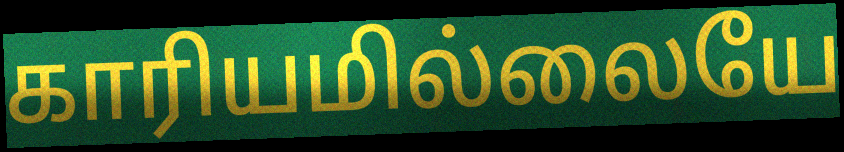
காரியமில்லையே